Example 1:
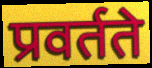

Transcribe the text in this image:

प्रवर्तते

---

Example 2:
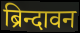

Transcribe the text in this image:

ब्रिन्दावन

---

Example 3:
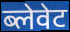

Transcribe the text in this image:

ब्लेवेट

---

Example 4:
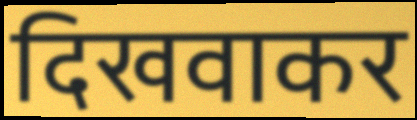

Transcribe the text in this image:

दिखवाकर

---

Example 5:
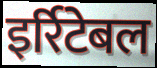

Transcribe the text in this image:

इर्रिटेबल